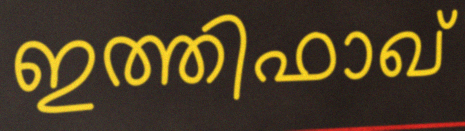
ഇത്തിഫാഖ്